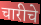
चारीचे